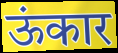
ऊंकार